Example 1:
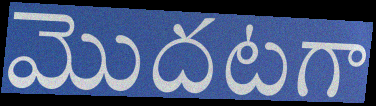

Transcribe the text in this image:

మొదటగా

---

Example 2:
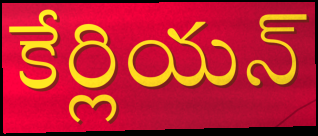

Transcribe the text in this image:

కేర్లియన్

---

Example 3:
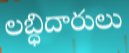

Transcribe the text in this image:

లబ్ధిదారులు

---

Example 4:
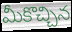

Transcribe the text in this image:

మీకొచ్చిన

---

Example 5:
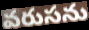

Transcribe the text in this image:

వరుసను